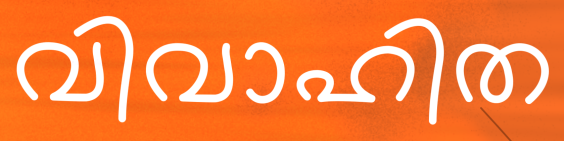
വിവാഹിത